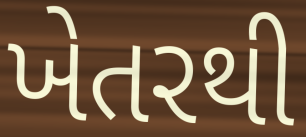
ખેતરથી